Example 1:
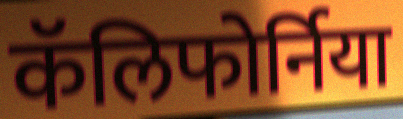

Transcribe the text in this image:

कॅलिफोर्निया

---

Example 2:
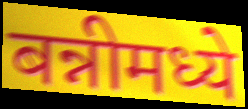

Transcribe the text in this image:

बन्नीमध्ये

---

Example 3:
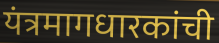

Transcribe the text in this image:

यंत्रमागधारकांची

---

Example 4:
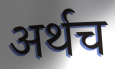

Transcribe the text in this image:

अर्थच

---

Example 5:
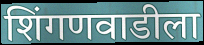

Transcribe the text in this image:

शिंगणवाडीला